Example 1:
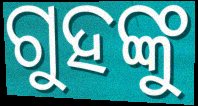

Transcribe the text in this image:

ଗୁହଙ୍କୁ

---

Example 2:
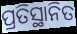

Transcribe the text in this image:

ପ୍ରତିସ୍ଥାନିତ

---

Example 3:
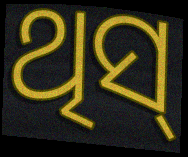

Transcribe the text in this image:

ଥିସ୍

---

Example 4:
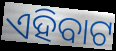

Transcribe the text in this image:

ଏହିବାଟ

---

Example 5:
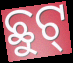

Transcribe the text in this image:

ଛୁଟ୍